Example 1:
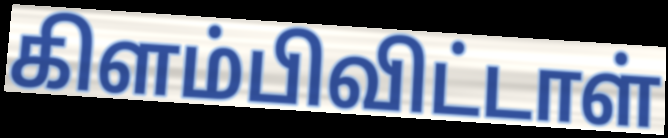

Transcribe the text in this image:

கிளம்பிவிட்டாள்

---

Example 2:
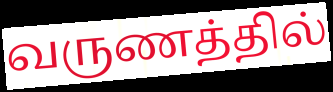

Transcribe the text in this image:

வருணத்தில்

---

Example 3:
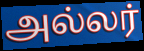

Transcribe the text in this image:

அல்லர்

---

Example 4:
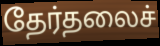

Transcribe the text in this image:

தேர்தலைச்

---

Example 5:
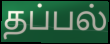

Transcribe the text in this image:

தப்பல்